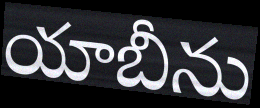
యాబీను